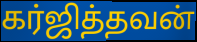
கர்ஜித்தவன்